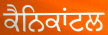
ਕੈਨਿਕਾਂਟਲ